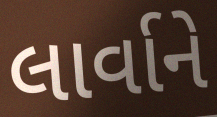
લાર્વાને